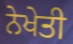
ਨੇਖੇਤੀ